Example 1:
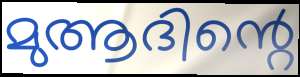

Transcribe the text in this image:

മുആദിന്റെ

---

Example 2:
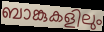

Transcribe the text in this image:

ബാങ്കുകളിലും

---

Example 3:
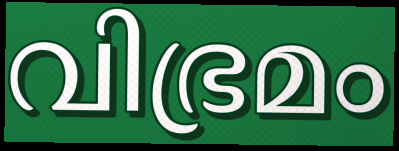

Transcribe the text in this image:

വിഭ്രമം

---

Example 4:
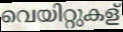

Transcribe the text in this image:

വെയിറ്റുകള്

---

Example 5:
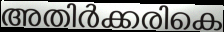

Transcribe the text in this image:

അതിർക്കരികെ